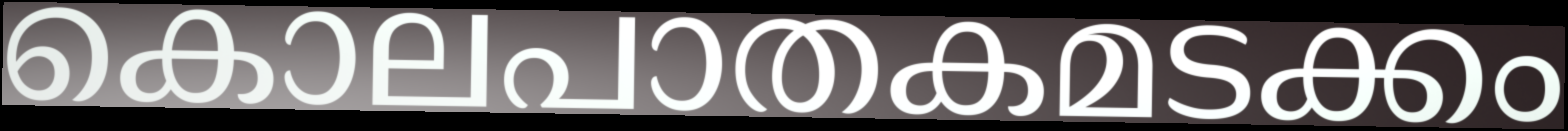
കൊലപാതകമടക്കം